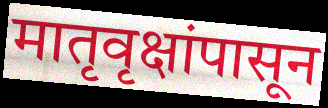
मातृवृक्षांपासून